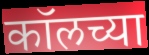
कॉलच्या